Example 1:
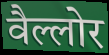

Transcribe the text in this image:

वैल्लोर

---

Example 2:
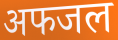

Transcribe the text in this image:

अफजल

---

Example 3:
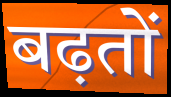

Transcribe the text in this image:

बढ़तों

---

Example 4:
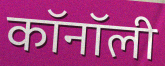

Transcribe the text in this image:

कॉनॉली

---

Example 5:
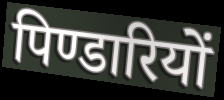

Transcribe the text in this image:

पिण्डारियों